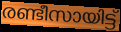
രണ്ടീസായിട്ട്